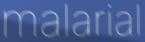
malarial